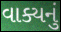
વાક્યનું